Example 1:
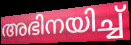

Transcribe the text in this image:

അഭിനയിച്ച്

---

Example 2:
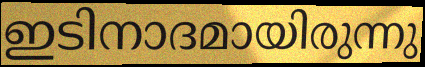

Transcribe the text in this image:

ഇടിനാദമായിരുന്നു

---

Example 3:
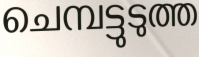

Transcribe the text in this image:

ചെമ്പട്ടുടുത്ത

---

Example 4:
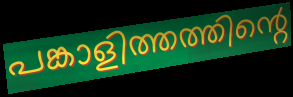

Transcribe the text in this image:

പങ്കാളിത്തത്തിന്റെ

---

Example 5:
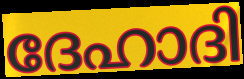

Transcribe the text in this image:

ദേഹാദി